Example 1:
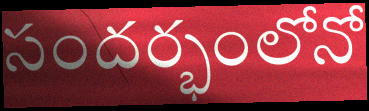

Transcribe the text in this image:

సందర్భంలోనో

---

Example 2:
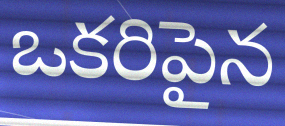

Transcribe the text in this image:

ఒకరిపైన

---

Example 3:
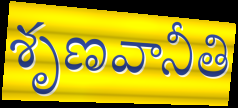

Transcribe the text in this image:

శృణవానీతి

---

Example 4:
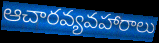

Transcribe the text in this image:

ఆచారవ్యవహారాలు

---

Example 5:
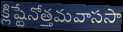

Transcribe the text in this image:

క్లిష్టేనోత్తమవాససా